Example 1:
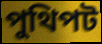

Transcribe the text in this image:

পুথিপট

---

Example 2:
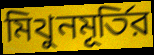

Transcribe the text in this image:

মিথুনমূর্তির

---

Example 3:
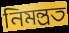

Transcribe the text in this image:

নিমন্ত্রত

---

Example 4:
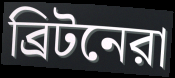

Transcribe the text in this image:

ব্রিটনেরা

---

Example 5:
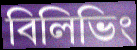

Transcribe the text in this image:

বিলিভিং